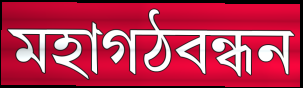
মহাগঠবন্ধন